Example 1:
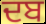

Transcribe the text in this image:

ਦਬ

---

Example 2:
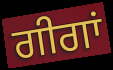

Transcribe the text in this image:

ਗੀਗਾਂ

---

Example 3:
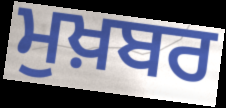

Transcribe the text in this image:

ਮੁਖ਼ਬਰ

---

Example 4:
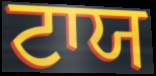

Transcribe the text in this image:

ਟਾਯ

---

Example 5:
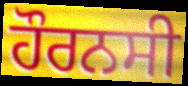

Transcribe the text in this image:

ਹੌਰਨਸੀ